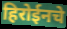
हिरोईनचे